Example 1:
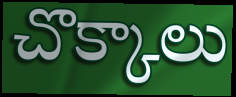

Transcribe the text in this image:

చొక్కాలు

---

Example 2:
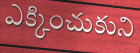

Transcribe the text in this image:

ఎక్కించుకుని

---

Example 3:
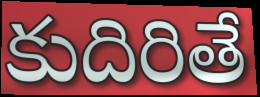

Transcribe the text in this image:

కుదిరితే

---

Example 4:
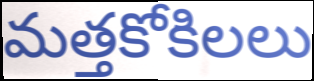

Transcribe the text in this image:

మత్తకోకిలలు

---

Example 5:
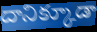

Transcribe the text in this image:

దానిక్కూడా